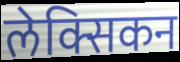
लेक्सिकन